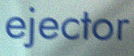
ejector